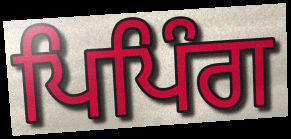
ਪਿਪਿੰਗ